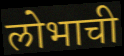
लोभाची